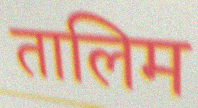
तालिम